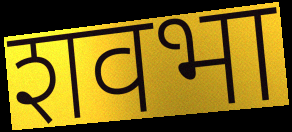
शवभा